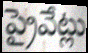
ప్రైవేట్లు